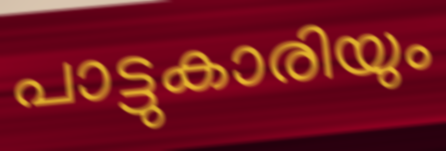
പാട്ടുകാരിയും